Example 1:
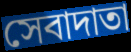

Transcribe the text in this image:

সেবাদাতা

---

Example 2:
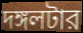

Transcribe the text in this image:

দঙ্গলটার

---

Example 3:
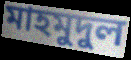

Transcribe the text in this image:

মাহমুদুল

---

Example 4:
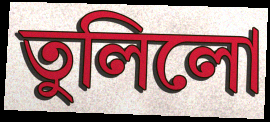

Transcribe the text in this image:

তুলিলো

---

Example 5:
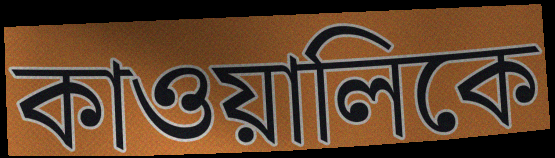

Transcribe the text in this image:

কাওয়ালিকে